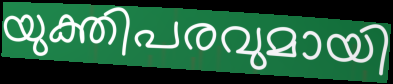
യുക്തിപരവുമായി